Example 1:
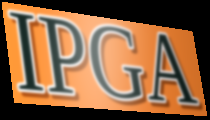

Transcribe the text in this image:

IPGA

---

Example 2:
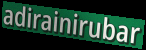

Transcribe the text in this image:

adirainirubar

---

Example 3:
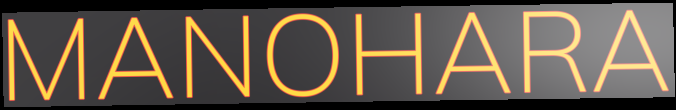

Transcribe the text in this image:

MANOHARA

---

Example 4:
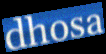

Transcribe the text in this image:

dhosa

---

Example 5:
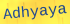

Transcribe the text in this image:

Adhyaya